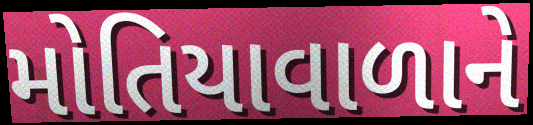
મોતિયાવાળાને